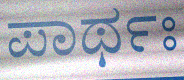
ಪಾರ್ಥಃ